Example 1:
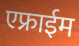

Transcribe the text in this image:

एफ्राईम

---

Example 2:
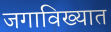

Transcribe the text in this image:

जगाविख्यात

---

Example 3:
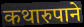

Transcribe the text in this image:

कथारुपाने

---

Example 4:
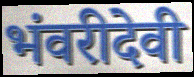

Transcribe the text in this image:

भंवरीदेवी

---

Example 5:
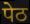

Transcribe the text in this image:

पेठ